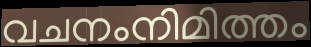
വചനംനിമിത്തം